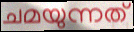
ചമയുന്നത്